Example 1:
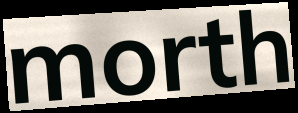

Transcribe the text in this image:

morth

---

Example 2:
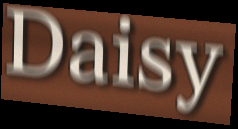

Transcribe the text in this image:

Daisy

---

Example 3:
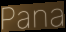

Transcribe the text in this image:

Pana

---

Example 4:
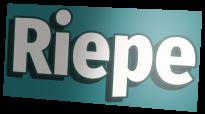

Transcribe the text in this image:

Riepe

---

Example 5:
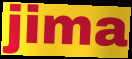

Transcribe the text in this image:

jima